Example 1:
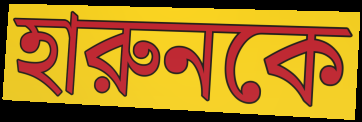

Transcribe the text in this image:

হারুনকে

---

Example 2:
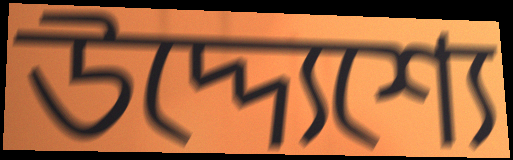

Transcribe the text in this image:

উদ্দ্যেশ্যে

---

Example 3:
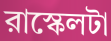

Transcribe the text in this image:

রাস্কেলটা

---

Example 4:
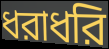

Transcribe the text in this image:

ধরাধরি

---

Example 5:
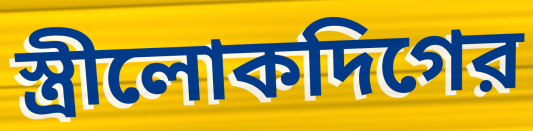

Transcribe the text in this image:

স্ত্রীলোকদিগের